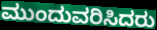
ಮುಂದುವರಿಸಿದರು